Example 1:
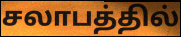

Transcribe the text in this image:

சலாபத்தில்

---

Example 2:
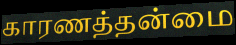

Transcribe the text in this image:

காரணத்தன்மை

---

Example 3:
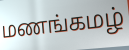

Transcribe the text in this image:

மணங்கமழ்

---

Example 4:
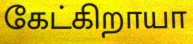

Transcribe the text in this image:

கேட்கிறாயா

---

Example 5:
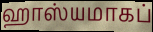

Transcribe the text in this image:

ஹாஸ்யமாகப்